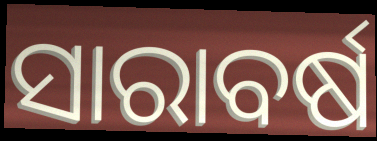
ସାରାବର୍ଷ